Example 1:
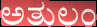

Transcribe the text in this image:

ಅತುಲಂ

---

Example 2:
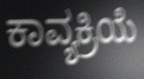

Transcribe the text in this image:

ಕಾವ್ಯಕ್ರಿಯೆ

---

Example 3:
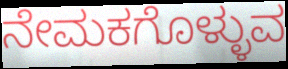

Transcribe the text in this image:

ನೇಮಕಗೊಳ್ಳುವ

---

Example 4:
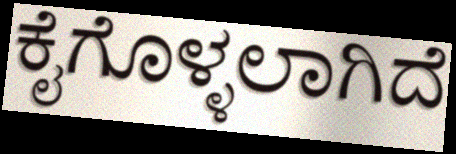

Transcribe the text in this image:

ಕೈಗೊಳ್ಳಲಾಗಿದೆ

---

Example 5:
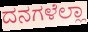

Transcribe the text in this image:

ದನಗಳೆಲ್ಲಾ